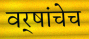
वर्षांचेच